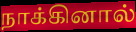
நாக்கினால்